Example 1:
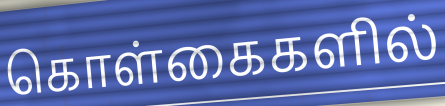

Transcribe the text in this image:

கொள்கைகளில்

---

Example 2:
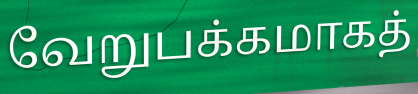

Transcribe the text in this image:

வேறுபக்கமாகத்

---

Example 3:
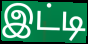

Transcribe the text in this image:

இட்டி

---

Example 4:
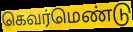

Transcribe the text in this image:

கெவர்மெண்டு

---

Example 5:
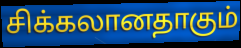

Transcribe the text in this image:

சிக்கலானதாகும்